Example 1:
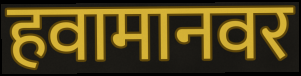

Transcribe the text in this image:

हवामानवर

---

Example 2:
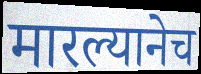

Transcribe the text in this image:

मारल्यानेच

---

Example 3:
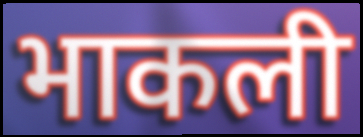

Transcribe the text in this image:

भाकली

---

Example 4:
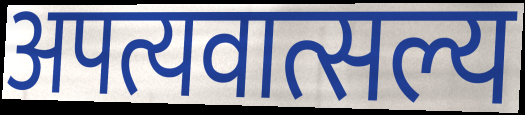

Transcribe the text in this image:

अपत्यवात्सल्य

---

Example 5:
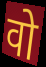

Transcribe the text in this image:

वो